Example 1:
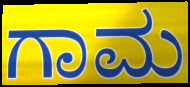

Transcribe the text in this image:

ಗಾಮ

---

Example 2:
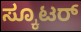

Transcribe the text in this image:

ಸ್ಕೂಟರ್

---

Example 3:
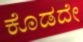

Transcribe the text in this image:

ಕೊಡದೇ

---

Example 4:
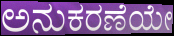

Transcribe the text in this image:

ಅನುಕರಣೆಯೇ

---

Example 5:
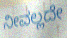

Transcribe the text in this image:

ನೀವಲ್ಲದೇ